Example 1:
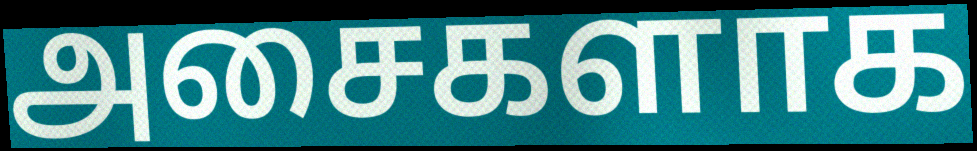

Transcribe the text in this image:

அசைகளாக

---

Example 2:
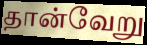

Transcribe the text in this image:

தான்வேறு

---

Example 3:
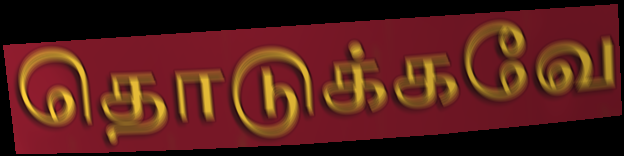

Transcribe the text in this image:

தொடுக்கவே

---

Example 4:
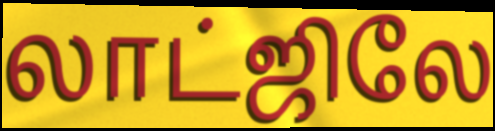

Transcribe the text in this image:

லாட்ஜிலே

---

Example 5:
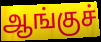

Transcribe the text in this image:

ஆங்குச்